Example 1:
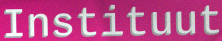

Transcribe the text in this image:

Instituut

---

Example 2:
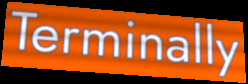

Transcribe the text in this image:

Terminally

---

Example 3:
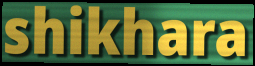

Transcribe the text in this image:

shikhara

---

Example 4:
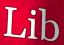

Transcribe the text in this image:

Lib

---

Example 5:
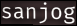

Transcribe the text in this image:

sanjog